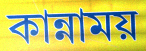
কান্নাময়